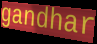
gandhar